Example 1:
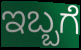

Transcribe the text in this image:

ಇಬ್ಬಗೆ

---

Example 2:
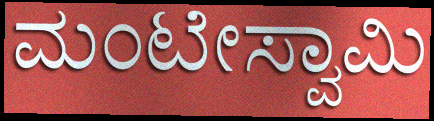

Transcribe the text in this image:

ಮಂಟೇಸ್ವಾಮಿ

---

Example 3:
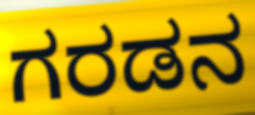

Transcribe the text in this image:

ಗರಡನ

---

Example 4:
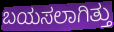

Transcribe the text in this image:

ಬಯಸಲಾಗಿತ್ತು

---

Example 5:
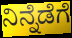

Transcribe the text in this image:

ನಿನ್ನೆಡೆಗೆ